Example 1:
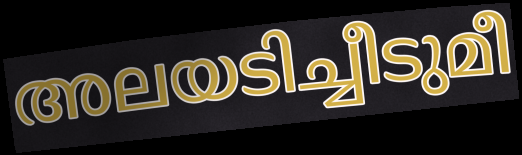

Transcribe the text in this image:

അലയടിച്ചീടുമീ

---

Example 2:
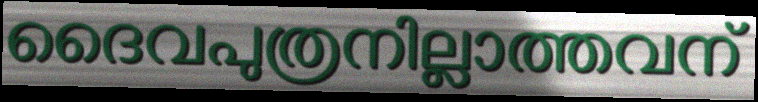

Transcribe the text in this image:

ദൈവപുത്രനില്ലാത്തവന്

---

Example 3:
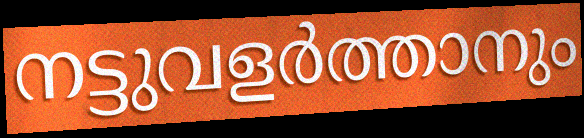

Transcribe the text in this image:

നട്ടുവളർത്താനും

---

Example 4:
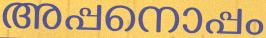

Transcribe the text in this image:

അപ്പനൊപ്പം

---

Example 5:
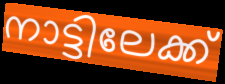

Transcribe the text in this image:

നാട്ടിലേക്ക്